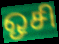
ஒசி